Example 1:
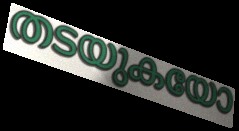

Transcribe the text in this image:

തടയുകയോ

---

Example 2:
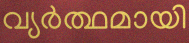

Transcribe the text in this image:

വ്യർത്ഥമായി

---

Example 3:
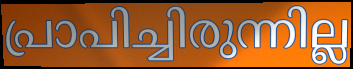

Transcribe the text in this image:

പ്രാപിച്ചിരുന്നില്ല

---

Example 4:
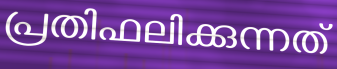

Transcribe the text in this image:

പ്രതിഫലിക്കുന്നത്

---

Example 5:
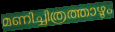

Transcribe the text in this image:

മണിച്ചിത്രത്താഴും